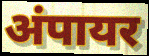
अंपायर